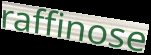
raffinose